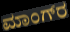
ಮಾಂಗ್‌ರ